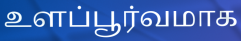
உளப்பூர்வமாக